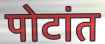
पोटांत